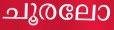
ചൂരലോ